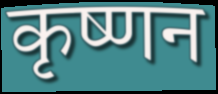
कृष्णन